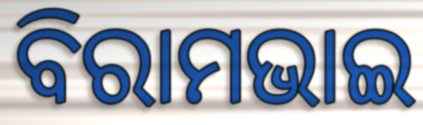
ବିରାମଭାଇ